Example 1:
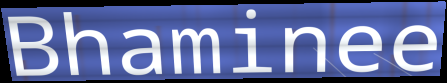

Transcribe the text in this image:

Bhaminee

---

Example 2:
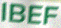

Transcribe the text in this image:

IBEF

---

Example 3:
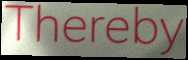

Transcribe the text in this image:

Thereby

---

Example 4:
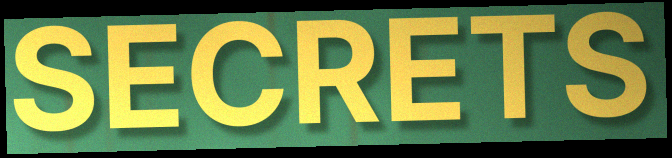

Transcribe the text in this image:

SECRETS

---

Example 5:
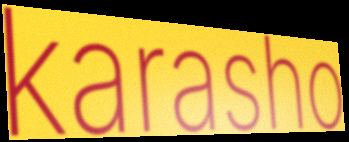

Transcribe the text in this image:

karasho